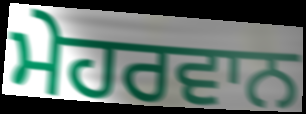
ਮੇਹਰਵਾਨ